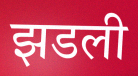
झडली